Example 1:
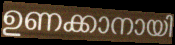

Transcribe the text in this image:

ഉണക്കാനായി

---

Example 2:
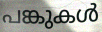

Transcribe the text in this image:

പങ്കുകൾ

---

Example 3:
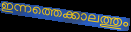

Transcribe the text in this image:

ഇന്നത്തെക്കാലത്തും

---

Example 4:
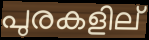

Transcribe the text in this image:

പുരകളില്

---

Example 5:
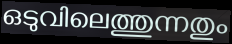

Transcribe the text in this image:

ഒടുവിലെത്തുന്നതും